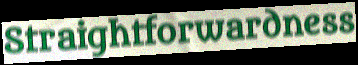
Straightforwardness